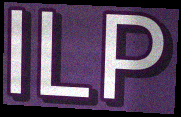
ILP